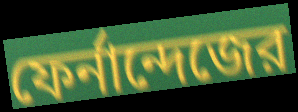
ফের্নান্দেজের